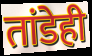
तांडेही